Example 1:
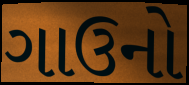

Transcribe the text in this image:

ગાઉનો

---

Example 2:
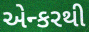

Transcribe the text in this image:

એન્કરથી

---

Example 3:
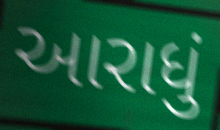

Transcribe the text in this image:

આરાધું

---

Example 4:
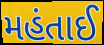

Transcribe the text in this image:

મહંતાઈ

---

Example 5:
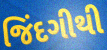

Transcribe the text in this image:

જિંદગીથી